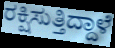
ರಕ್ಷಿಸುತ್ತಿದ್ದಾಳೆ